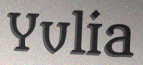
Yulia